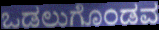
ಒಡಲುಗೊಂಡವ